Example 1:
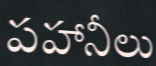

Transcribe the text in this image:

పహానీలు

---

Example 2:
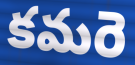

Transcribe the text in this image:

కమరె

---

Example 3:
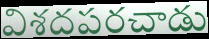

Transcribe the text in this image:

విశదపరచాడు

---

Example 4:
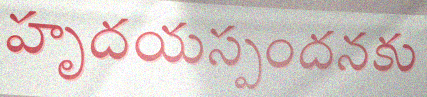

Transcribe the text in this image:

హృదయస్పందనకు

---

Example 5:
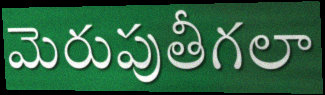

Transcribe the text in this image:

మెరుపుతీగలా